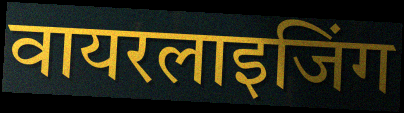
वायरलाइजिंग